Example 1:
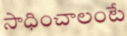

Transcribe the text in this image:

సాధించాలంటే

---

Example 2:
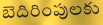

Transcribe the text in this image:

బెదిరింపులకు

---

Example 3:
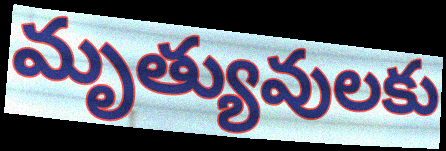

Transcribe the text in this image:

మృత్యువులకు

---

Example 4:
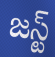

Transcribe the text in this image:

జస్ట్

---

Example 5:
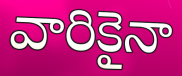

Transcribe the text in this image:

వారికైనా